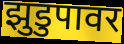
झुडुपावर